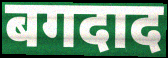
बगदाद